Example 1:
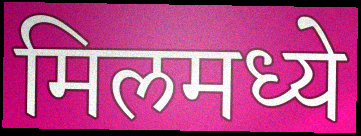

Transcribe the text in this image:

मिलमध्ये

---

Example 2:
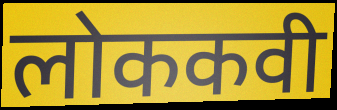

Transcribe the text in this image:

लोककवी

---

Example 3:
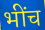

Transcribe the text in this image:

भींच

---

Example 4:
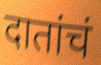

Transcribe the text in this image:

दातांचं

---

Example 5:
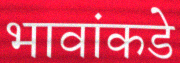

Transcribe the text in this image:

भावांकडे